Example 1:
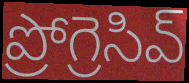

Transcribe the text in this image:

ప్రోగ్రెసివ్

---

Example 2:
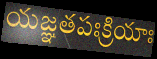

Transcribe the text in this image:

యజ్ఞతపఃక్రియాః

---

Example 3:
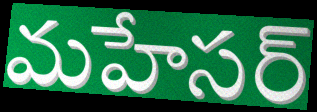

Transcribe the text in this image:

మహేసర్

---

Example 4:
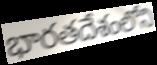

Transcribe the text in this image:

భారతదేశంలోని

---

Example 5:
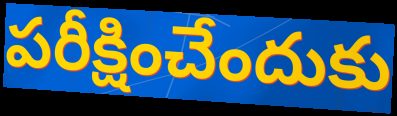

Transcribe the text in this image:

పరీక్షించేందుకు